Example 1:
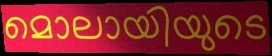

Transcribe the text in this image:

മൊലായിയുടെ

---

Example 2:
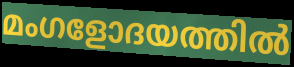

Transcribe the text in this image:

മംഗളോദയത്തിൽ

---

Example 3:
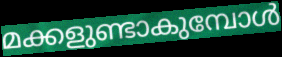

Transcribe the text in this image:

മക്കളുണ്ടാകുമ്പോൾ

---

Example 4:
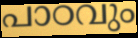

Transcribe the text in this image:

പാഠവും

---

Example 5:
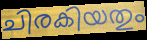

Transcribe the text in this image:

ചിരകിയതും